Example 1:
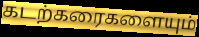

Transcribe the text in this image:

கடற்கரைகளையும்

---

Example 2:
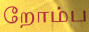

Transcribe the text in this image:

றோம்ப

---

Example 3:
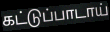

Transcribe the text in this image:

கட்டுப்பாடாய்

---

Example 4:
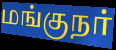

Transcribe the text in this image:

மங்குநர்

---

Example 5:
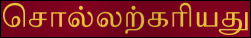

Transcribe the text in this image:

சொல்லற்கரியது